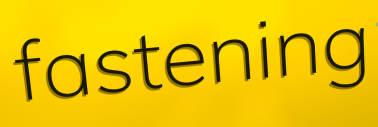
fastening